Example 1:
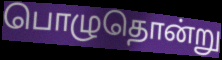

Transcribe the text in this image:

பொழுதொன்று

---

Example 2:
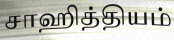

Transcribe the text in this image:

சாஹித்தியம்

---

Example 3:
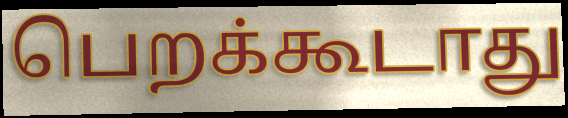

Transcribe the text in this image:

பெறக்கூடாது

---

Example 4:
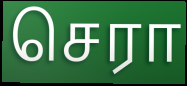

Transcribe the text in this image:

செரா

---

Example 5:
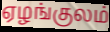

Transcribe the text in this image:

ஏழங்குலம்